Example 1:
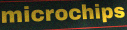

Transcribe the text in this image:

microchips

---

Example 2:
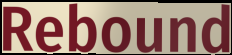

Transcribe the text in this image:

Rebound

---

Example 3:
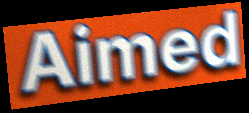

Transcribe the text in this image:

Aimed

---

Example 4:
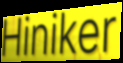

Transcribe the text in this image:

Hiniker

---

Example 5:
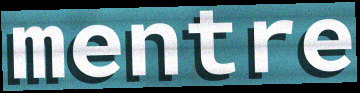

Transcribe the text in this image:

mentre